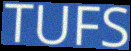
TUFS